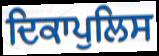
ਦਿਕਾਪੁਲਿਸ